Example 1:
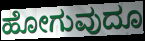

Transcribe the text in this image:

ಹೋಗುವುದೂ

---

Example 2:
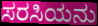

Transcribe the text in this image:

ಸರಸಿಯನು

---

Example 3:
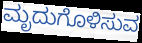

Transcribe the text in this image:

ಮೃದುಗೊಳಿಸುವ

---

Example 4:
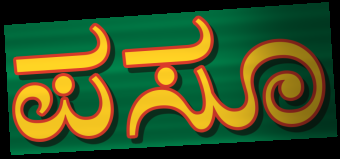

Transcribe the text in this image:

ಪಸೂ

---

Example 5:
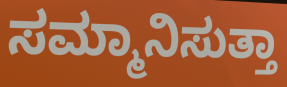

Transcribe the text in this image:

ಸಮ್ಮಾನಿಸುತ್ತಾ